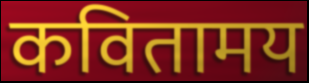
कवितामय